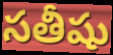
సతీషు